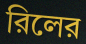
রিলের